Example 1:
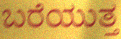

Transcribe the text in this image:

ಬರೆಯುತ್ತ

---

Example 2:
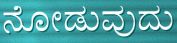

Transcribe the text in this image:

ನೋಡುವುದು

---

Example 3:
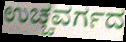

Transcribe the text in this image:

ಉಚ್ಚವರ್ಗದ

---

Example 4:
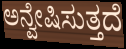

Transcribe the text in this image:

ಅನ್ವೇಷಿಸುತ್ತದೆ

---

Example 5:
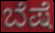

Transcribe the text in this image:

ಬೆಷೆ